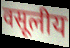
वसूलीय